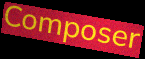
Composer